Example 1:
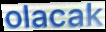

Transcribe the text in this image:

olacak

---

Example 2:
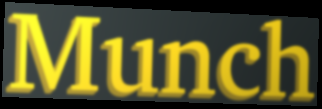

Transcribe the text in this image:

Munch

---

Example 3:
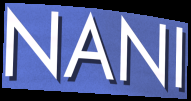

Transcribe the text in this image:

NANI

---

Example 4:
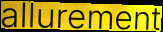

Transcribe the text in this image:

allurement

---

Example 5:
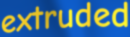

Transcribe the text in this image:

extruded